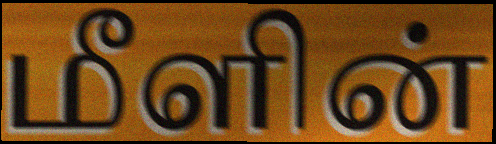
மீளின்